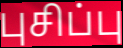
புசிப்பு